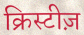
क्रिस्टीज़